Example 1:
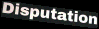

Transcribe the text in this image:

Disputation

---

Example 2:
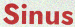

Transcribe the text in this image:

Sinus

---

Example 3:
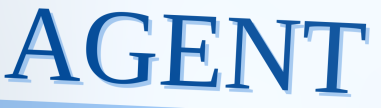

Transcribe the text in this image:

AGENT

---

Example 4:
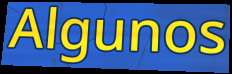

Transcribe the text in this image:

Algunos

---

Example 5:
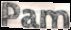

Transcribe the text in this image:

Pam